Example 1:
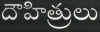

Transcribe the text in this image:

దౌహిత్రులు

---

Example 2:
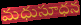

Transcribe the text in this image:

మధుసూధన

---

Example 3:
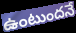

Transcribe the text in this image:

ఉంటుందనే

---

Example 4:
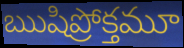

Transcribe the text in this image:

ఋషిప్రోక్తమూ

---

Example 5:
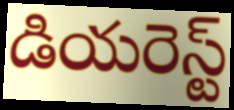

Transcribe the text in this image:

డియరెస్ట్